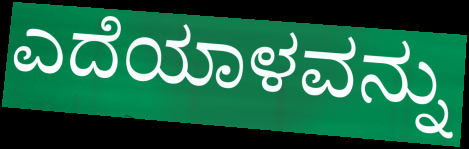
ಎದೆಯಾಳವನ್ನು